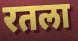
रतला